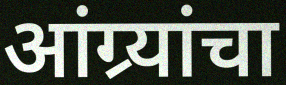
आंग्र्यांचा